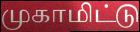
முகாமிட்டு